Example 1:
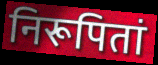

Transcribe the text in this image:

निरूपितां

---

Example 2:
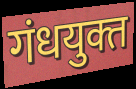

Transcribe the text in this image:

गंधयुक्‍त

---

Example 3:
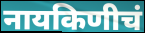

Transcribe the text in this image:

नायकिणीचं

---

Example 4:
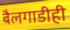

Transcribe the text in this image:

बैलगाडीही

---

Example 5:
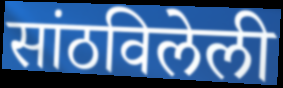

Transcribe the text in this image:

सांठविलेली